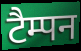
टैम्पन